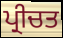
ਪ੍ਰੀਚਤ